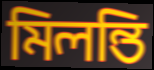
মিলন্তি